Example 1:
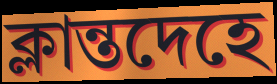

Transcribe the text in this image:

ক্লান্তদেহে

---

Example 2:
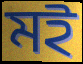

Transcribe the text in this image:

মই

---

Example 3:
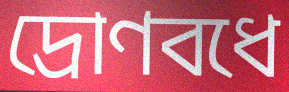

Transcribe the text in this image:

দ্রোণবধে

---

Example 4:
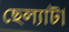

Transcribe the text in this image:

ছেল্যাটা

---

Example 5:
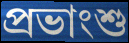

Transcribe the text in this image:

প্রভাংশু